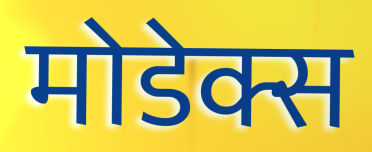
मोडेक्स